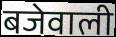
बजेवाली